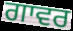
ਗਾਵਰ